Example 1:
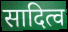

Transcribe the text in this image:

सादित्व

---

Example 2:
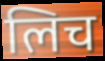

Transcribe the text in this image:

लिच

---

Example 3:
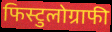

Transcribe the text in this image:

फिस्टुलोग्राफी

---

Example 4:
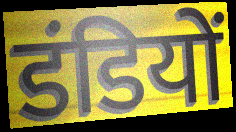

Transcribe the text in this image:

डंडियों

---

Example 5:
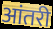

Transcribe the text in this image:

आंतरी